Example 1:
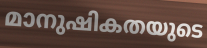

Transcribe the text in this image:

മാനുഷികതയുടെ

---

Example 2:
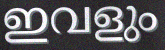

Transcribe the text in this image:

ഇവളും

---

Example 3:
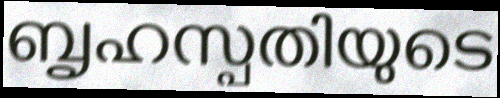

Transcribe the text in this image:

ബൃഹസ്പതിയുടെ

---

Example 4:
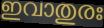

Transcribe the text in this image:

ഇവാതുരഃ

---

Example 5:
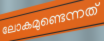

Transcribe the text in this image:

ലോകമുണ്ടെന്നത്